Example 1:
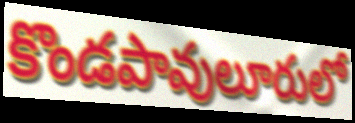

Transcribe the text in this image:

కొండపావులూరులో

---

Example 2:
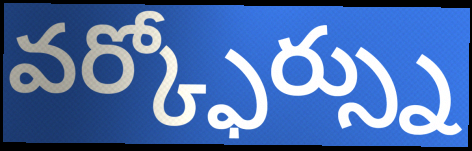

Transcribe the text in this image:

వర్క్ఫోర్స్ను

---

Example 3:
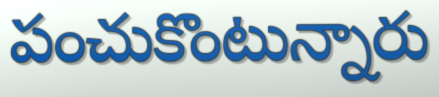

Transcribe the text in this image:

పంచుకొంటున్నారు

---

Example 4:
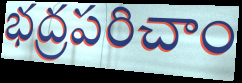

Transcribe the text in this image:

భద్రపరిచాం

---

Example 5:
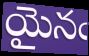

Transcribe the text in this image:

యైనఁ